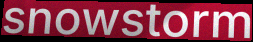
snowstorm